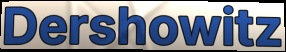
Dershowitz